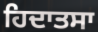
ਹਿਦਾਤਸਾ